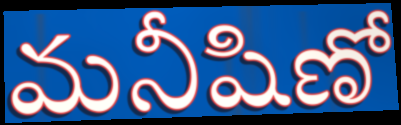
మనీషిణో